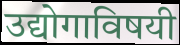
उद्योगाविषयी